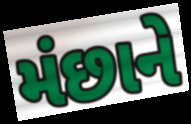
મંછાને